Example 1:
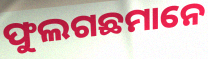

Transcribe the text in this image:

ଫୁଲଗଛମାନେ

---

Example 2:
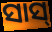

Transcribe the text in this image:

ସାସ୍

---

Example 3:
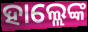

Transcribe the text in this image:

ହାଲ୍ଲେଙ୍କ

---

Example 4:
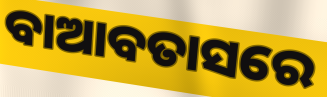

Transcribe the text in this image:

ବାଆବତାସରେ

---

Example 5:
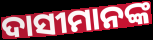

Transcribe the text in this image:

ଦାସୀମାନଙ୍କ